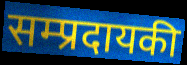
सम्प्रदायकी